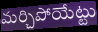
మర్చిపోయేట్టు